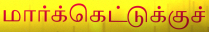
மார்க்கெட்டுக்குச்